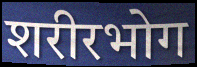
शरीरभोग